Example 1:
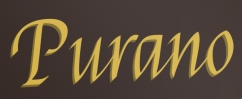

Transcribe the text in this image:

Purano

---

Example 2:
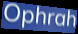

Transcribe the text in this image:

Ophrah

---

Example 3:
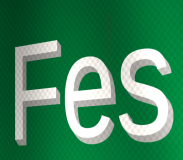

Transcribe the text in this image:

Fes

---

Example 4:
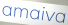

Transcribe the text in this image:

amaiva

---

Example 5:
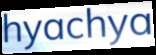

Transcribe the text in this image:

hyachya